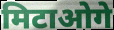
मिटाओगे